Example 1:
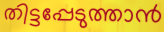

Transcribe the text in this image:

തിട്ടപ്പേടുത്താൻ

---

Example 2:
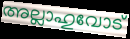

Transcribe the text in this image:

അല്ലാഹുവോട്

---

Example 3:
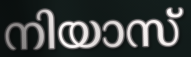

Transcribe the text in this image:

നിയാസ്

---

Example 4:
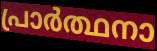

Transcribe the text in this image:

പ്രാർത്ഥനാ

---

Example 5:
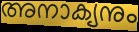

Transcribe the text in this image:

അനാക്യനും